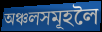
অঞ্চলসমূহলৈ